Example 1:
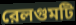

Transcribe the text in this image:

রেলগুমটি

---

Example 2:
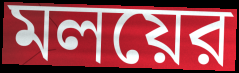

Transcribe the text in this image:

মলয়ের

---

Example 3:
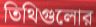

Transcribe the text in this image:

তিথিগুলোর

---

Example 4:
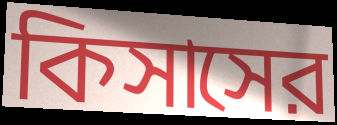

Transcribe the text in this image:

কিসাসের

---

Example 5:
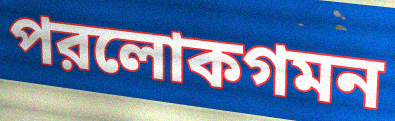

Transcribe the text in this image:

পরলোকগমন